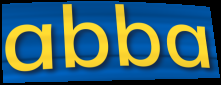
abba